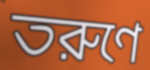
তরুণে